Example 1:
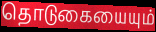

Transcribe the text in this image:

தொடுகையையும்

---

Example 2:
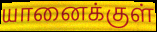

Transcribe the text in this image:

யானைக்குள்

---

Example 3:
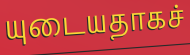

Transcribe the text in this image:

யுடையதாகச்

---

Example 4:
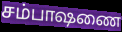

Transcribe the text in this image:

சம்பாஷணை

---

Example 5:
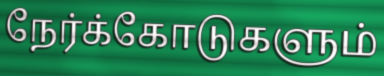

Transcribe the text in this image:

நேர்க்கோடுகளும்